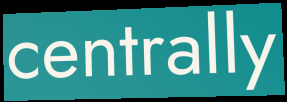
centrally